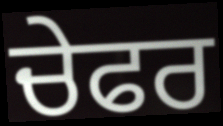
ਚੇਫਰ